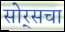
सोर्सचा